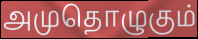
அமுதொழுகும்